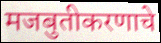
मजबुतीकरणाचे